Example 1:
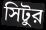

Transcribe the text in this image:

সিটুর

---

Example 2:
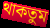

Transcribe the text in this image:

থাকতুম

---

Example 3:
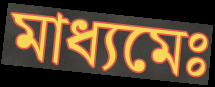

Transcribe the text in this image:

মাধ্যমেঃ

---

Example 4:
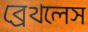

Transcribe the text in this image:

ব্রেথলেস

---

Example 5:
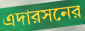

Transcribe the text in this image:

এদারসনের